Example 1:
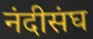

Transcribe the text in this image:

नंदीसंघ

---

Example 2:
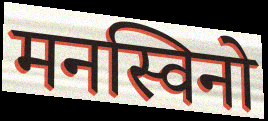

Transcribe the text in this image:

मनस्विनो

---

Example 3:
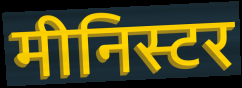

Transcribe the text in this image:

मीनिस्टर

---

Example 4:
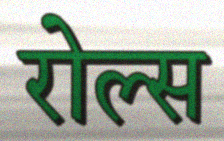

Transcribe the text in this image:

रोल्स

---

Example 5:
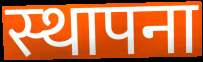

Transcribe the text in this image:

स्‍थापना